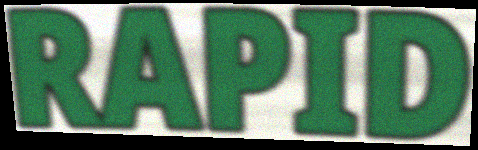
RAPID